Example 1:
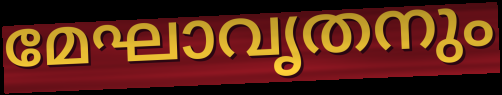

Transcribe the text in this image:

മേഘാവൃതനും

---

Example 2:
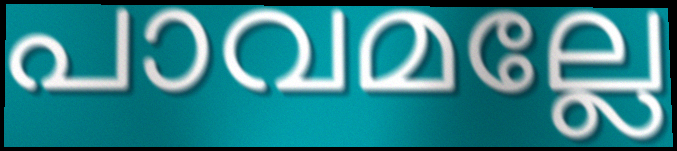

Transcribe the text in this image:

പാവമല്ലേ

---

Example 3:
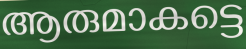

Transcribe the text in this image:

ആരുമാകട്ടെ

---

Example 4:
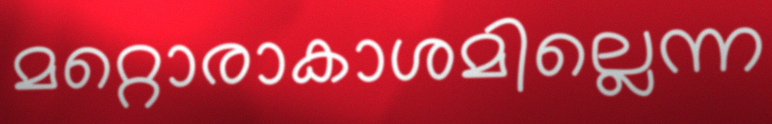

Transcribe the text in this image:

മറ്റൊരാകാശമില്ലെന്ന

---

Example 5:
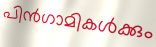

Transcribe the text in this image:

പിൻഗാമികൾക്കും